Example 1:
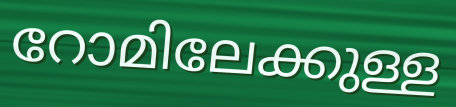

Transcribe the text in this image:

റോമിലേക്കുള്ള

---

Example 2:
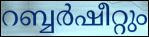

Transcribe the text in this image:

റബ്ബർഷീറ്റും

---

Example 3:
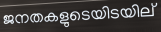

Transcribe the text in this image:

ജനതകളുടെയിടയില്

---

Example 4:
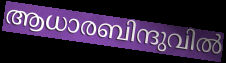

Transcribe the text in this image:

ആധാരബിന്ദുവിൽ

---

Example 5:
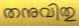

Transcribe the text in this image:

തനുവിതു